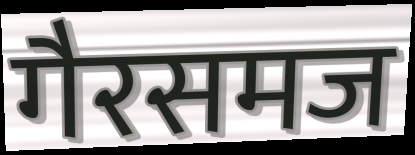
गैरसमज